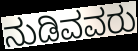
ನುಡಿವವರು